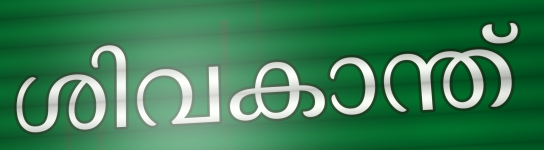
ശിവകാന്ത്